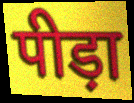
पीड़ा